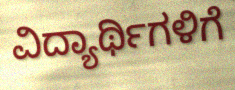
ವಿದ್ಯಾರ್ಥಿಗಳಿಗೆ